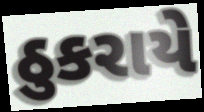
ઠુકરાયે